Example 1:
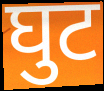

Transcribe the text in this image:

घुट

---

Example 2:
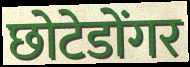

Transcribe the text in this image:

छोटेडोंगर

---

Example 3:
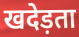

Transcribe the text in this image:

खदेड़ता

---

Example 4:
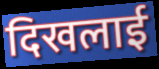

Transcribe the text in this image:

दिखलाई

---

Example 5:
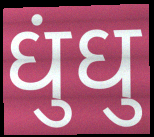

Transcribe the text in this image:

धुंधु